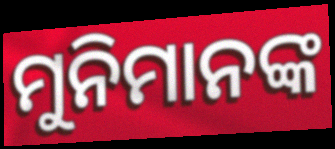
ମୁନିମାନଙ୍କ